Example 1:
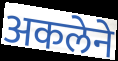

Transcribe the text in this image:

अकलेने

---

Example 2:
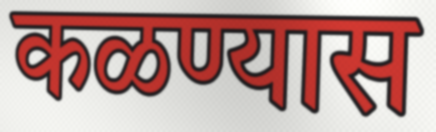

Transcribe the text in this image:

कळण्यास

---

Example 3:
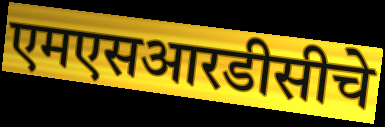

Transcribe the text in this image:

एमएसआरडीसीचे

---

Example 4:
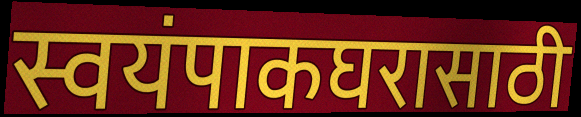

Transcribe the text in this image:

स्वयंपाकघरासाठी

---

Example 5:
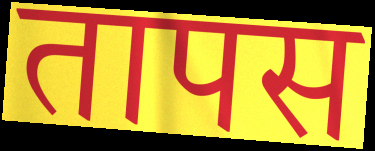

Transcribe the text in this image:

तापस